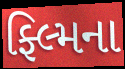
ફ્લ્મિના